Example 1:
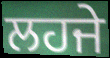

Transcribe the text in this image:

ਲਹਜੇ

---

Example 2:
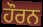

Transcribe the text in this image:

ਹੌਰਨ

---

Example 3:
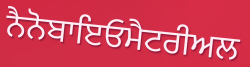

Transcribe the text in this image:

ਨੈਨੋਬਾਇਓਮੈਟਰੀਅਲ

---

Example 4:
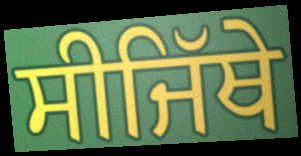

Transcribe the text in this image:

ਸੀਜਿੱਥੇ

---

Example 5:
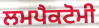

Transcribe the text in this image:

ਲਮਪੈਕਟੋਮੀ